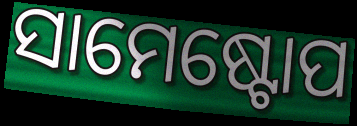
ସାମେଷ୍ଟୋପ